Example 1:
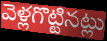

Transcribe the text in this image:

వెళ్లగొట్టినట్లు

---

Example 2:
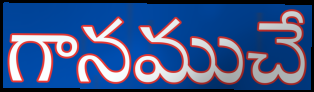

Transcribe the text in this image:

గానముచే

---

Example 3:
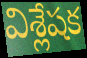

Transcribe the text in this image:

విశ్లేషక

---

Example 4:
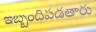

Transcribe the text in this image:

ఇబ్బందిపడతారు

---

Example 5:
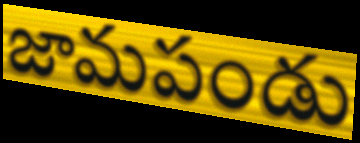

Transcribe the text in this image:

జామపండు